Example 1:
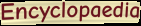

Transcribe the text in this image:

Encyclopaedia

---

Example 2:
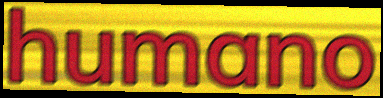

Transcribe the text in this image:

humano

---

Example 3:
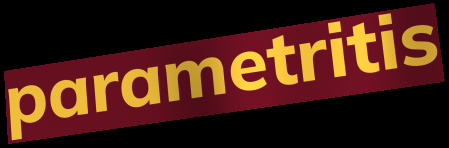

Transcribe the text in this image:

parametritis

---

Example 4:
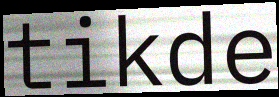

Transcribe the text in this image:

tikde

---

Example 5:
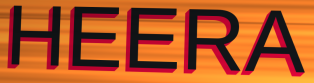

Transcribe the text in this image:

HEERA